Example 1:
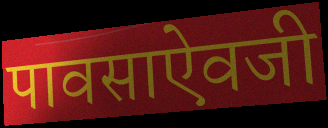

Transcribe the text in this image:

पावसाऐवजी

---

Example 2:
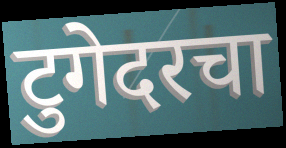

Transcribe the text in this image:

टुगेदरचा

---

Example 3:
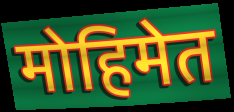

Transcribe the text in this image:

मोहिमेत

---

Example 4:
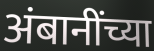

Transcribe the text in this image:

अंबानींच्या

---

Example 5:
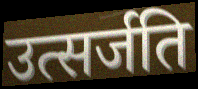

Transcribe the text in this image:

उत्सर्जति